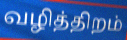
வழித்திறம்